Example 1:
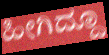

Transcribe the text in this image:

ಹೀಗಿದ್ದೂ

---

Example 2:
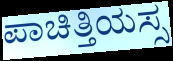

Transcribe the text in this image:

ಪಾಚಿತ್ತಿಯಸ್ಸ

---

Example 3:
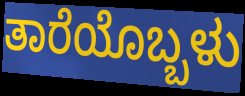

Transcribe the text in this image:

ತಾರೆಯೊಬ್ಬಳು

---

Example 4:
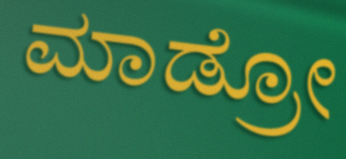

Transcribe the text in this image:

ಮಾಡ್ರೋ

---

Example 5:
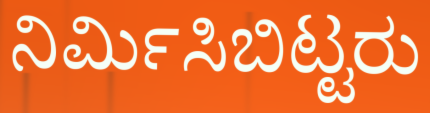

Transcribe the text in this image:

ನಿರ್ಮಿಸಿಬಿಟ್ಟರು